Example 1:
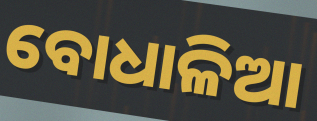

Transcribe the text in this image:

ବୋଧାଳିଆ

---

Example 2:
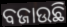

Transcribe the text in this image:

ବଜାଉଛି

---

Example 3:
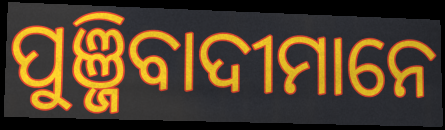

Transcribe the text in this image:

ପୁଞ୍ଜିବାଦୀମାନେ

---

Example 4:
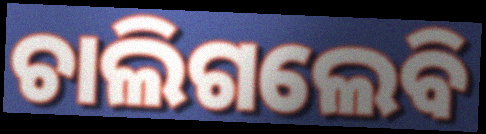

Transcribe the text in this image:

ଚାଲିଗଲେବି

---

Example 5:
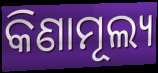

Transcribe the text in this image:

କିଣାମୂଲ୍ୟ